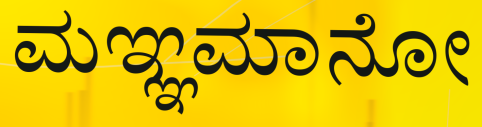
ಮಞ್ಞಮಾನೋ